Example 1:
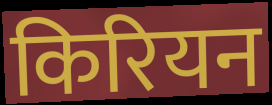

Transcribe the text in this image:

किरियन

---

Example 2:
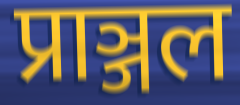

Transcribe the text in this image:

प्राञ्जल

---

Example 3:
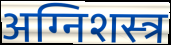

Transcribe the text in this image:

अग्निशस्त्र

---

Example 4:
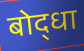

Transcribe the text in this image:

बोद्धा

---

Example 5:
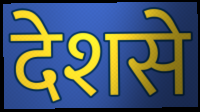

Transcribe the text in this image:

देशसे